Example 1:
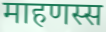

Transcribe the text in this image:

माहणस्स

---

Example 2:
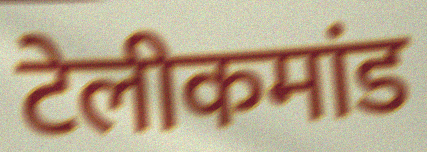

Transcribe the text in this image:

टेलीकमांड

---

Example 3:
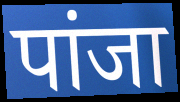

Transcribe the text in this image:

पांजा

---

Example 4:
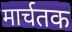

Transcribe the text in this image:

मार्चतक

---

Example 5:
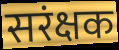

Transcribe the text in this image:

सरंक्षक